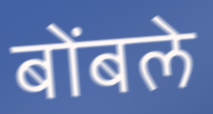
बोंबले